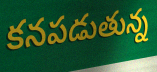
కనపడుతున్న